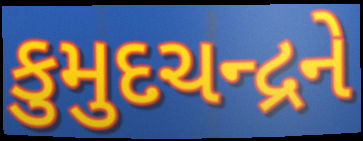
કુમુદચન્દ્રને